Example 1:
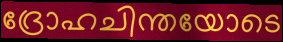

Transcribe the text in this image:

ദ്രോഹചിന്തയോടെ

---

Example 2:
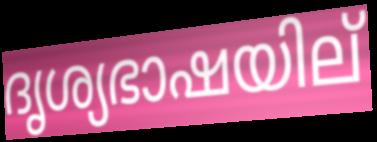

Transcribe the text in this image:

ദൃശ്യഭാഷയില്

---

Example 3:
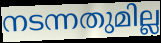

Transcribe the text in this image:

നടന്നതുമില്ല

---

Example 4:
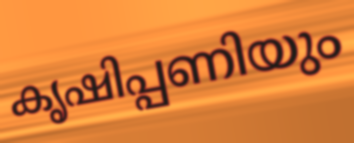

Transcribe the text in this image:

കൃഷിപ്പണിയും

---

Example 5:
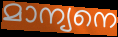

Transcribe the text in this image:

മാന്യനെ